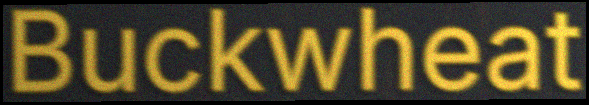
Buckwheat